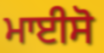
ਮਾਈਸੋ